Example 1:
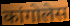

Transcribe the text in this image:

कांगोलेस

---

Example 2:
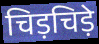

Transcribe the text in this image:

चिड़चिड़े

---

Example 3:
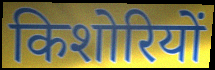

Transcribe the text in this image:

किशोरियों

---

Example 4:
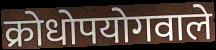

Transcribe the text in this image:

क्रोधोपयोगवाले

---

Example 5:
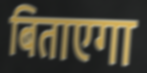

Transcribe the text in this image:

बिताएगा